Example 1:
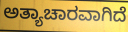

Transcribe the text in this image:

ಅತ್ಯಾಚಾರವಾಗಿದೆ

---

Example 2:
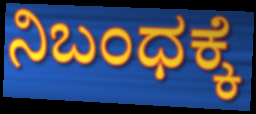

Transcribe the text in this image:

ನಿಬಂಧಕ್ಕೆ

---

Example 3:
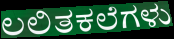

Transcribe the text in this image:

ಲಲಿತಕಲೆಗಳು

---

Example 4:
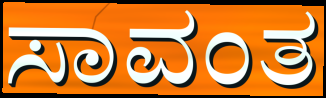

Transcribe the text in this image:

ಸಾವಂತ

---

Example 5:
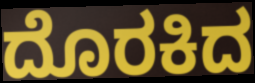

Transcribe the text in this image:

ದೊರಕಿದ